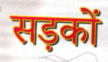
सड़कों